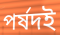
পর্ষদই